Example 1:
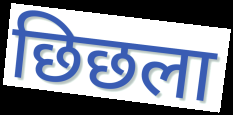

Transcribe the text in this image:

छिछला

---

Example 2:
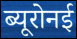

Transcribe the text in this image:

ब्यूरोनई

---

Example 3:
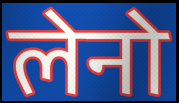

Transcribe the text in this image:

लेनो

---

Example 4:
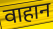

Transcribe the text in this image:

वाहान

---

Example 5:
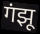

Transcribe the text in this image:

गंझू